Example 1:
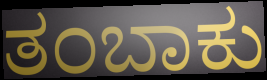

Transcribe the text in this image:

ತಂಬಾಕು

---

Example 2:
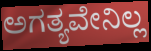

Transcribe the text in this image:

ಅಗತ್ಯವೇನಿಲ್ಲ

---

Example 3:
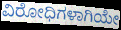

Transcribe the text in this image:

ವಿರೋಧಿಗಳಾಗಿಯೇ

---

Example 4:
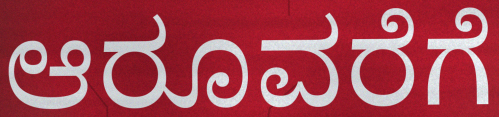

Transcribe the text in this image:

ಆರೂವರೆಗೆ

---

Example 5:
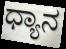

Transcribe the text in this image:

ಧ್ಯಾನ